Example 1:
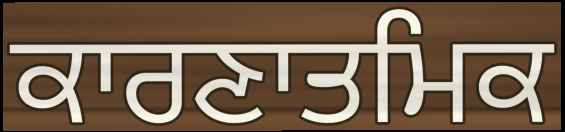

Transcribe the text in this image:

ਕਾਰਣਾਤਮਿਕ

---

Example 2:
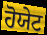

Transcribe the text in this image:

ਹੋਯੇਟ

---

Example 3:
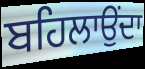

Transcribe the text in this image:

ਬਹਿਲਾਉਂਦਾ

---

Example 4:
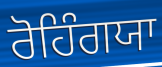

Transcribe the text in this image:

ਰੋਹਿੰਗਯਾ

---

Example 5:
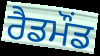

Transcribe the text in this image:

ਰੈਡਮੌਂਡ